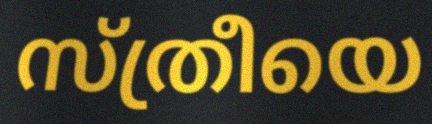
സ്ത്രീയെ